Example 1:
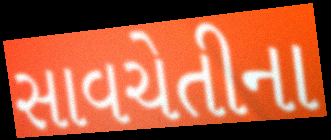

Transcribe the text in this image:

સાવચેતીના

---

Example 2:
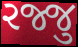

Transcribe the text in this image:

રજ્જુ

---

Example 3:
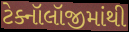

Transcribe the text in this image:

ટેક્નૉલૉજીમાંથી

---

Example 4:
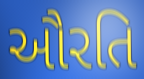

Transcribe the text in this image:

ઔરતિ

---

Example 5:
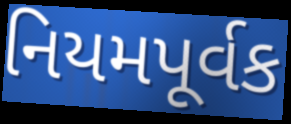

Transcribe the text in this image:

નિયમપૂર્વક